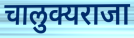
चालुक्यराजा